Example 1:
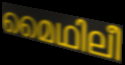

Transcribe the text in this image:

മൈഥിലീ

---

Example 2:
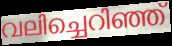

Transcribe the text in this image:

വലിച്ചെറിഞ്ഞ്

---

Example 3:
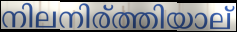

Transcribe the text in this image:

നിലനിര്ത്തിയാല്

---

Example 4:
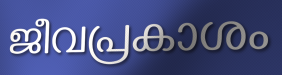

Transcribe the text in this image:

ജീവപ്രകാശം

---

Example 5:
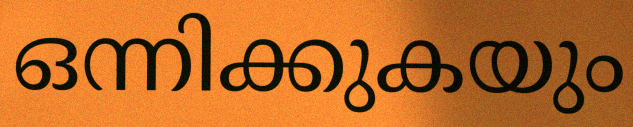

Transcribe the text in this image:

ഒന്നിക്കുകയും